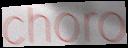
choro